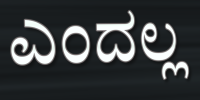
ಎಂದಲ್ಲ